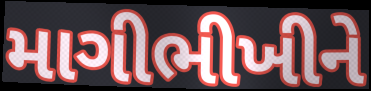
માગીભીખીને